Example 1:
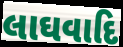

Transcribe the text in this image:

લાઘવાદિ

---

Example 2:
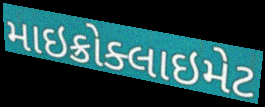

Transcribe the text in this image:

માઇક્રોક્લાઇમેટ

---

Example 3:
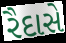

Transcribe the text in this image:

રૈદાસે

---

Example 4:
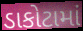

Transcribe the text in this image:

ડાકોટામાં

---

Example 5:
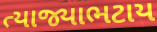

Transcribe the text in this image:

ત્યાજ્યાભટાય